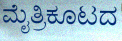
ಮೈತ್ರಿಕೂಟದ